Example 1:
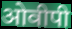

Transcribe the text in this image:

ओवीपी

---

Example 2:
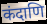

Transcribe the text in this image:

कंदाणि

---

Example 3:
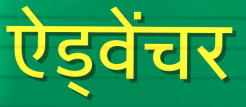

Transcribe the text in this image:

ऐड्वेंचर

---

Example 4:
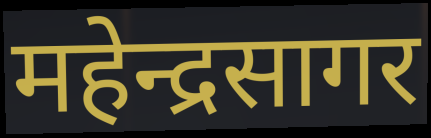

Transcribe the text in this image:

महेन्द्रसागर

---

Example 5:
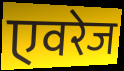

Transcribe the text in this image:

एवरेज